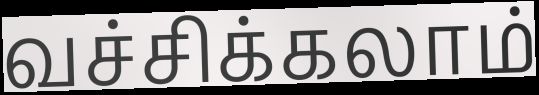
வச்சிக்கலாம்